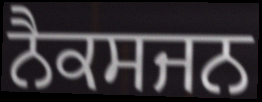
ਨੈਕਸਜਨ